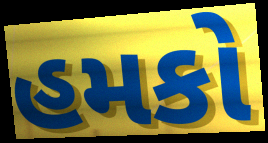
હમકો